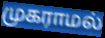
முகராமல்